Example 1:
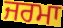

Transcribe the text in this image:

ਜਰਮਾ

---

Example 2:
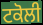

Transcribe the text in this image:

ਟਕੋਲੀ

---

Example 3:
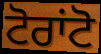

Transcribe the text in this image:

ਟੋਰਾਂਟੋ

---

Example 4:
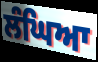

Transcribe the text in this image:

ਲੰਘਿਆ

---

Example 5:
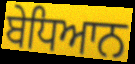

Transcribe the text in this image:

ਬੇਧਿਆਨ